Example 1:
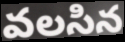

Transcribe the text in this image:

వలసిన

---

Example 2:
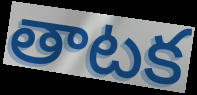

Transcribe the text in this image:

తాటక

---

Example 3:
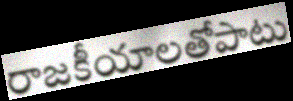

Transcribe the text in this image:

రాజకీయాలతోపాటు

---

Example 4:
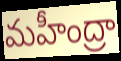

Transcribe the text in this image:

మహీంద్రా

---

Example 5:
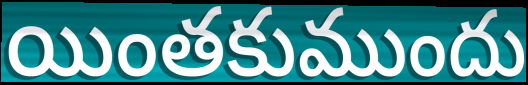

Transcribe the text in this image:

యింతకుముందు